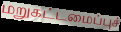
மறுகட்டமைப்புச்